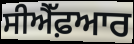
ਸੀਐੱਫ਼ਆਰ